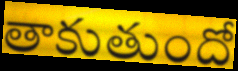
తాకుతుందో